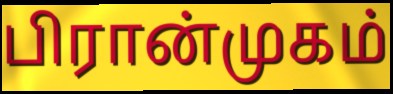
பிரான்முகம்